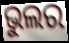
ଭୁଲର